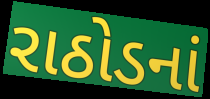
રાઠોડનાં